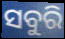
ସବୁରି